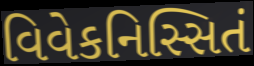
વિવેકનિસ્સિતં